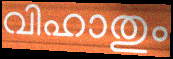
വിഹാതും